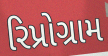
રિપ્રોગ્રામ